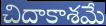
చిదాకాశమే